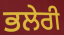
ਭਲੇਰੀ